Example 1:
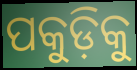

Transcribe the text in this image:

ପକୁଡ଼ିକୁ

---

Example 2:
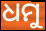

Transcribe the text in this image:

ଧମୁ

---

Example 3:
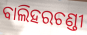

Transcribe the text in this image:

ବାଲିହରଚଣ୍ଡୀ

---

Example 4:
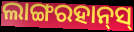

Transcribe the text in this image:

ଲାଙ୍ଗରହାନ୍‌ସ୍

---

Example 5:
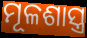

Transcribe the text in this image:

ମୂଳଶାସ୍ତ୍ର